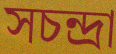
সচন্দ্রা